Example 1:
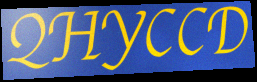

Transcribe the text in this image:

QHYCCD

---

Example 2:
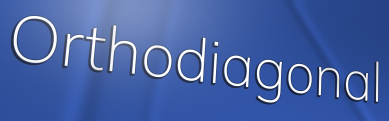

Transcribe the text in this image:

Orthodiagonal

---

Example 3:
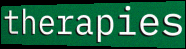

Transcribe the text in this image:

therapies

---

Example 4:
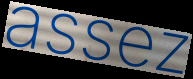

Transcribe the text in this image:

assez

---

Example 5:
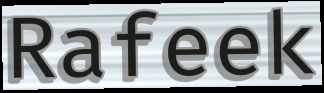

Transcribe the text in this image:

Rafeek